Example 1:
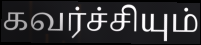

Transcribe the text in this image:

கவர்ச்சியும்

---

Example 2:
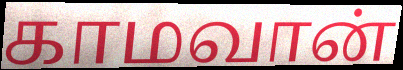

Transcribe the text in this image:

காமவான்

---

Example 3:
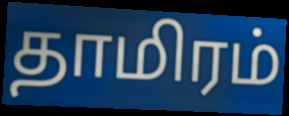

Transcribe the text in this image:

தாமிரம்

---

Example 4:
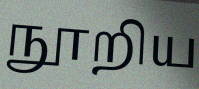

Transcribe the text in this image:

நூறிய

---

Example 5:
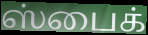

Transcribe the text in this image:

ஸ்பைக்